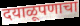
दयाळूपणाचा